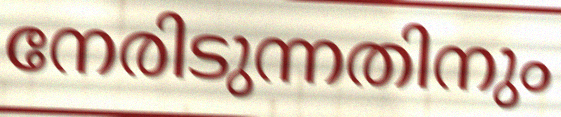
നേരിടുന്നതിനും